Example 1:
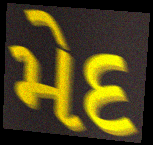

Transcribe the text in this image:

મેદ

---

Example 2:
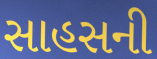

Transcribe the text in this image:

સાહસની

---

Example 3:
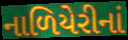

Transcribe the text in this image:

નાળિયેરીનાં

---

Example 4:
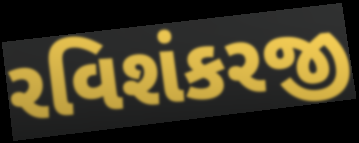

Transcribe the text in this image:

રવિશંકરજી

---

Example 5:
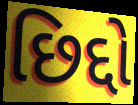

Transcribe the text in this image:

છિદ્દો